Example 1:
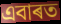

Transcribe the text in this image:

এবাৰত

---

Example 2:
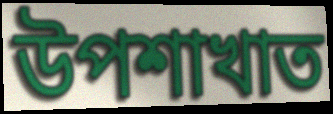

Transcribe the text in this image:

উপশাখাত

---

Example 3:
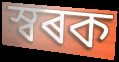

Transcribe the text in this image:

স্বৰক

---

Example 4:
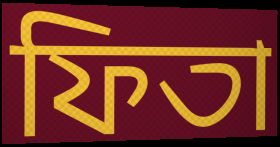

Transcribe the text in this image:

ফিতা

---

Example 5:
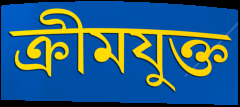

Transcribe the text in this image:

ক্ৰীমযুক্ত